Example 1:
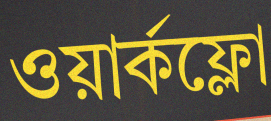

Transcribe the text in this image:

ওয়ার্কফ্লো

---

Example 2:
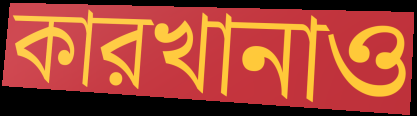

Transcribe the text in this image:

কারখানাও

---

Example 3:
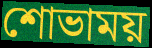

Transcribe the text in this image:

শোভাময়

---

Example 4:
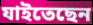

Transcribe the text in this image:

যাইতেছেন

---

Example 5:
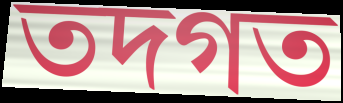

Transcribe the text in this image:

তদগত